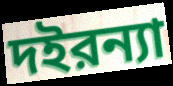
দইরন্যা